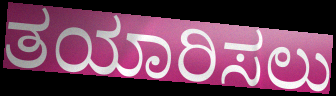
ತಯಾರಿಸಲು